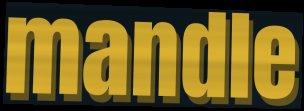
mandle